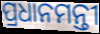
ପ୍ରଧାନମନ୍ତୀ